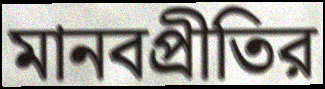
মানবপ্রীতির